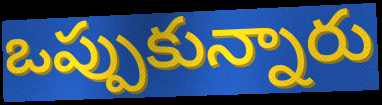
ఒప్పుకున్నారు